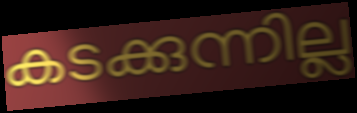
കടക്കുന്നില്ല